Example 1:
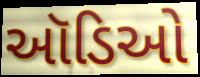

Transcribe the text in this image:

ઑડિઓ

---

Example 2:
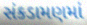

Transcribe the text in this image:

સંકડામણમાં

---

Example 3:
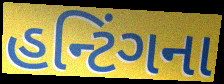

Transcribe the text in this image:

હન્ટિંગના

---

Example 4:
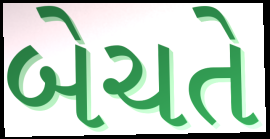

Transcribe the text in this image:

બેચતે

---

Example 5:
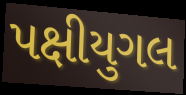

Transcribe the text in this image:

પક્ષીયુગલ